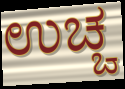
ಉಚ್ಚ